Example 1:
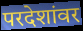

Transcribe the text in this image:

परदेशांवर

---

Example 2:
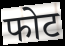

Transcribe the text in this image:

फोट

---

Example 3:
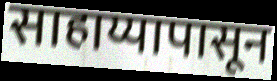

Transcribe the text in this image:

साहाय्यापासून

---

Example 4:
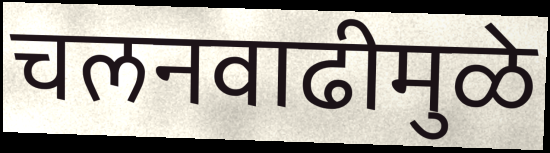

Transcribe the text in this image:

चलनवाढीमुळे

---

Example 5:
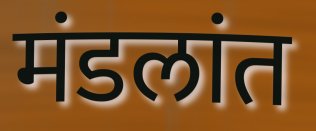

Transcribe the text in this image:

मंडलांत